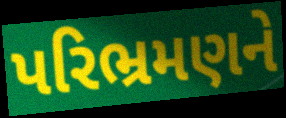
પરિભ્રમણને